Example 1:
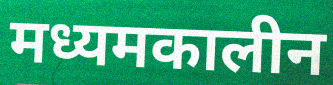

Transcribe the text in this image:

मध्यमकालीन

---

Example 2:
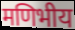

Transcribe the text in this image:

मणिभीय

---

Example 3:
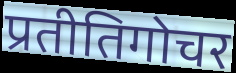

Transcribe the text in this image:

प्रतीतिगोचर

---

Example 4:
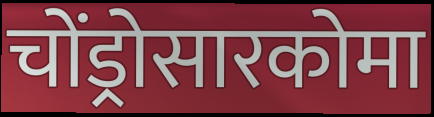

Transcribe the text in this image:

चोंड्रोसारकोमा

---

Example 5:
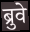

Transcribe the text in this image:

ब्रुवे